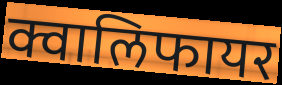
क्वालिफायर